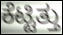
ಕೆಟ್ಟಿತ್ತು